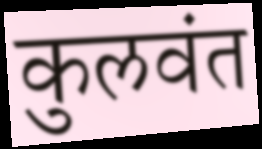
कुलवंत